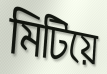
মিটিয়ে